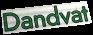
Dandvat